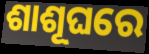
ଶାଶୂଘରେ